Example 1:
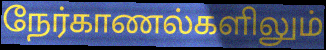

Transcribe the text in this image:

நேர்காணல்களிலும்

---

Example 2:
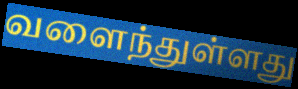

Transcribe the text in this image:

வளைந்துள்ளது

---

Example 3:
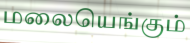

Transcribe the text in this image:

மலையெங்கும்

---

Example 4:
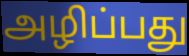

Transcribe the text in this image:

அழிப்பது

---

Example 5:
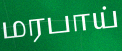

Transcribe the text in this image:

மரபாய்